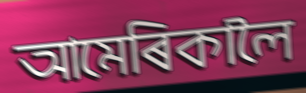
আমেৰিকালৈ